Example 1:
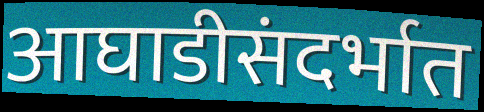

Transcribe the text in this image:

आघाडीसंदर्भात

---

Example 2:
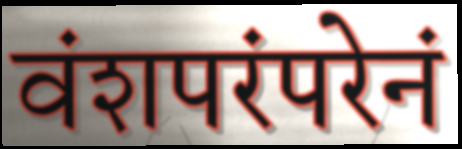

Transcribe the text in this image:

वंशपरंपरेनं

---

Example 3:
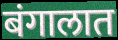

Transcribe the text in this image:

बंगालात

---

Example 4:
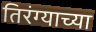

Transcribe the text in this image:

तिरंग्याच्या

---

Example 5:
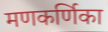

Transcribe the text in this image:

मणकर्णिका